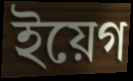
ইয়েগ